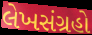
લેખસંગ્રહો